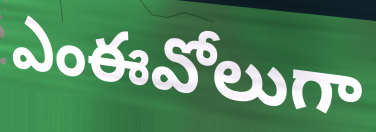
ఎంఈవోలుగా